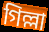
গিল্লা